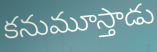
కనుమూస్తాడు